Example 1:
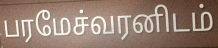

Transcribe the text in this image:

பரமேச்வரனிடம்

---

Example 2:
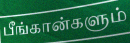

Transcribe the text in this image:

பீங்கான்களும்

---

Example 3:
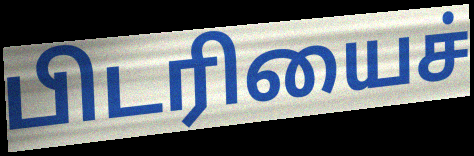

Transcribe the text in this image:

பிடரியைச்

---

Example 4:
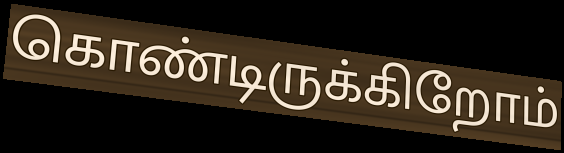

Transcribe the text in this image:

கொண்டிருக்கிறோம்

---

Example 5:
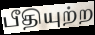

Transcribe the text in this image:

பீதியுற்ற